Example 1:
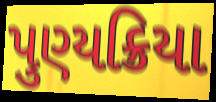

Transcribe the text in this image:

પુણ્યક્રિયા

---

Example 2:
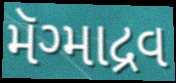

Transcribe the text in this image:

મૅગ્માદ્રવ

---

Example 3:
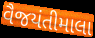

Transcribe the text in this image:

વૈજયંતીમાલા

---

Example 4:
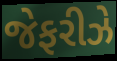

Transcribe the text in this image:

જેફરીઝે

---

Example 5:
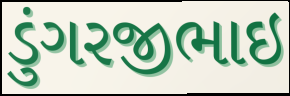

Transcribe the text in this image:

ડુંગરજીભાઇ